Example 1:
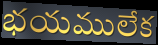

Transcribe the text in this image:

భయములేక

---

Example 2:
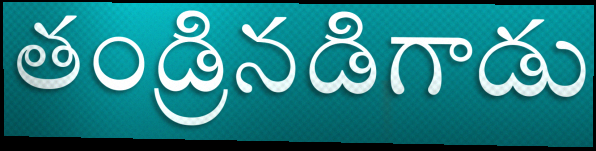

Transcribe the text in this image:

తండ్రినడిగాడు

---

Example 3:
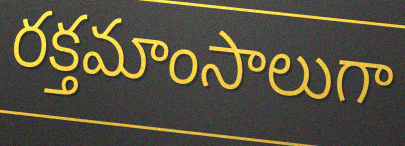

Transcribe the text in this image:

రక్తమాంసాలుగా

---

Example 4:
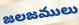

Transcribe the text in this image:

జలజములు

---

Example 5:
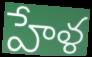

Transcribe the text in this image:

హేళ